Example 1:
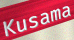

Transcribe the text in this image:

Kusama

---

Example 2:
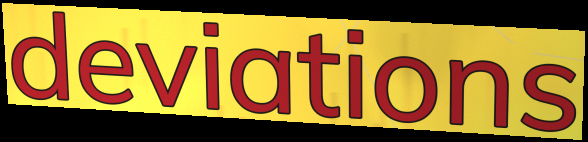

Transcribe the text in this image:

deviations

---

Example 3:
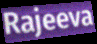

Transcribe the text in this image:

Rajeeva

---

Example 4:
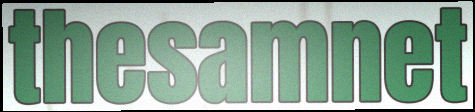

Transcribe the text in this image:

thesamnet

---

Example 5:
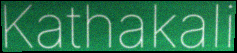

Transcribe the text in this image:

Kathakali